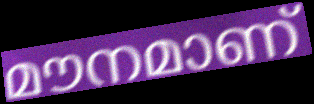
മൗനമാണ്